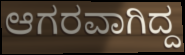
ಆಗರವಾಗಿದ್ದ